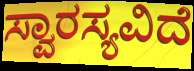
ಸ್ವಾರಸ್ಯವಿದೆ